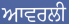
ਆਵਰਲੀ